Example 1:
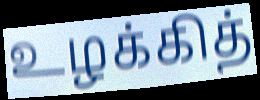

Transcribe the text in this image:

உழக்கித்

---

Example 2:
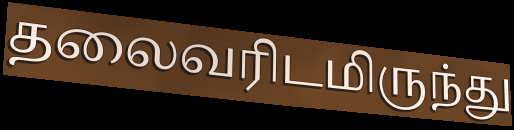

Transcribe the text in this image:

தலைவரிடமிருந்து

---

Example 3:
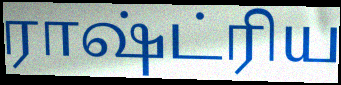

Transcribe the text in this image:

ராஷ்ட்ரிய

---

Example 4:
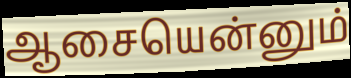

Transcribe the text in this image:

ஆசையென்னும்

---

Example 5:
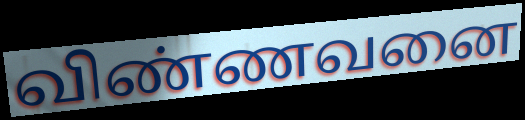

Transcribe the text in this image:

விண்ணவனை